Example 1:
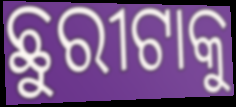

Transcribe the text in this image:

ଛୁରୀଟାକୁ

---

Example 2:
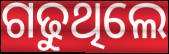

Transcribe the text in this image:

ଗଢୁଥିଲେ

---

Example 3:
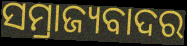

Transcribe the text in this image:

ସମ୍ରାଜ୍ୟବାଦର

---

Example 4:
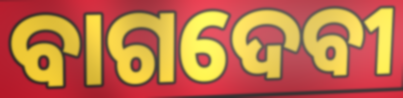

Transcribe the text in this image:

ବାଗଦେବୀ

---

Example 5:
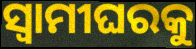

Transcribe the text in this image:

ସ୍ୱାମୀଘରକୁ